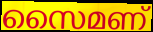
സൈമണ്